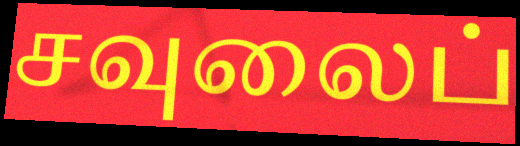
சவுலைப்